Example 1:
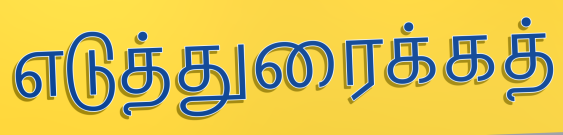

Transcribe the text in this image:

எடுத்துரைக்கத்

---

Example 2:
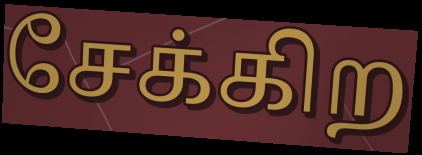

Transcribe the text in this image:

சேக்கிற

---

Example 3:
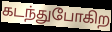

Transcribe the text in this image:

கடந்துபோகிற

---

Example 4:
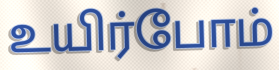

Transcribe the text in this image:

உயிர்போம்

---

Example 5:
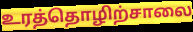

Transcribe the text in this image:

உரத்தொழிற்சாலை